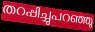
തറപ്പിച്ചുപറഞ്ഞു